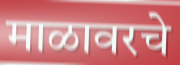
माळावरचे